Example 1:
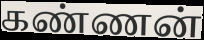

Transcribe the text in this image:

கண்ணன்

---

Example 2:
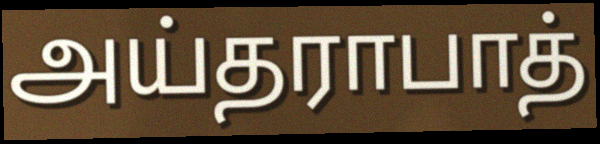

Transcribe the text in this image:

அய்தராபாத்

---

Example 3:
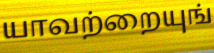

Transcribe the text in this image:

யாவற்றையுங்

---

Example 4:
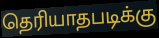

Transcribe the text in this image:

தெரியாதபடிக்கு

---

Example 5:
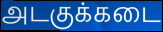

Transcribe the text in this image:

அடகுக்கடை